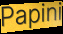
Papini